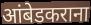
आंबेडकराना